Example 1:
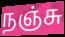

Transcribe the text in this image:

நஞ்சு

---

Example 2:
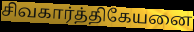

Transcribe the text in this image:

சிவகார்த்திகேயனை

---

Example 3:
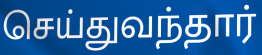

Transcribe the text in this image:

செய்துவந்தார்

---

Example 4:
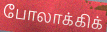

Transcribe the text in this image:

போலாக்கிக்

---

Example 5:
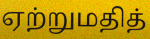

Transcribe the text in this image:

ஏற்றுமதித்